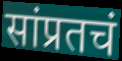
सांप्रतचं